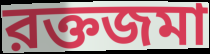
রক্তজমা